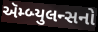
ઍમ્બ્યુલન્સનો